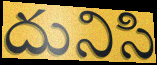
దునిసి